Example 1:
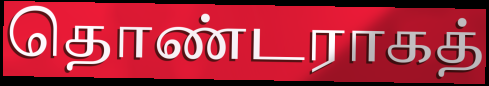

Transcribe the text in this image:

தொண்டராகத்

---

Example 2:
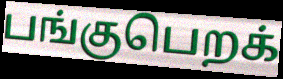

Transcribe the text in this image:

பங்குபெறக்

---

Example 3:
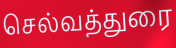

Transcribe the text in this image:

செல்வத்துரை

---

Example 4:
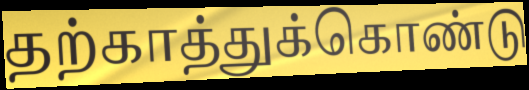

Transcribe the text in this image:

தற்காத்துக்கொண்டு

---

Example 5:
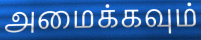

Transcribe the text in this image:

அமைக்கவும்